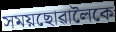
সময়ছোৱালৈকে